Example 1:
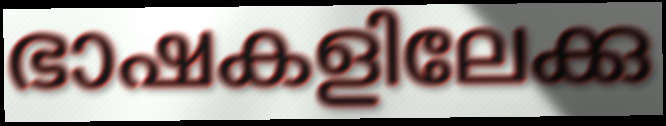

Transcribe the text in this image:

ഭാഷകളിലേക്കു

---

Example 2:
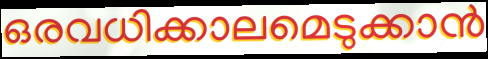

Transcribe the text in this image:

ഒരവധിക്കാലമെടുക്കാൻ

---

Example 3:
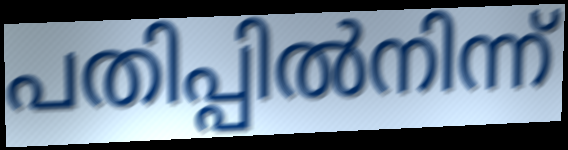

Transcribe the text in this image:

പതിപ്പിൽനിന്ന്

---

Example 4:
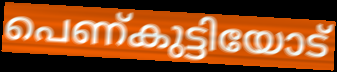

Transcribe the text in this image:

പെണ്കുട്ടിയോട്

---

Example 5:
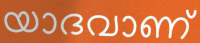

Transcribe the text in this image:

യാദവാണ്